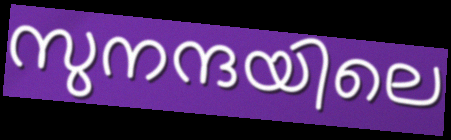
സുനന്ദയിലെ